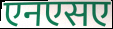
एनएसए